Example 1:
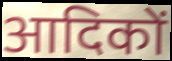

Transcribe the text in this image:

आदिकों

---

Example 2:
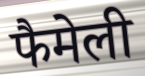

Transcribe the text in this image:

फैमेली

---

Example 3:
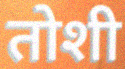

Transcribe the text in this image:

तोशी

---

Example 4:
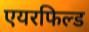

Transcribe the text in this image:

एयरफिल्ड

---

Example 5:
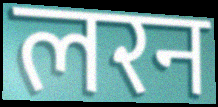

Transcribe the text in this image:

लरन